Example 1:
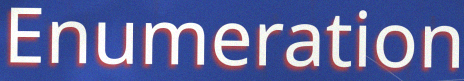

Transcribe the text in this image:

Enumeration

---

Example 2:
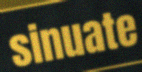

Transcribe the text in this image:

sinuate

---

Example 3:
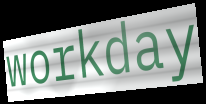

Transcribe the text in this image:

workday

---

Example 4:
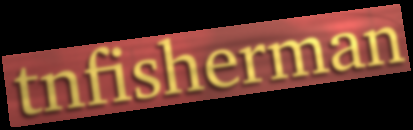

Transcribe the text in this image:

tnfisherman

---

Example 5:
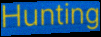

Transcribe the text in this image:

Hunting